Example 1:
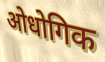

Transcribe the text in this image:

ओधोगिक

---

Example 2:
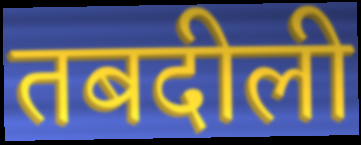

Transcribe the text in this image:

तबदीली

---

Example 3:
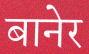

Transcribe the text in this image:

बानेर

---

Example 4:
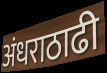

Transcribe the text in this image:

अंधराठाढी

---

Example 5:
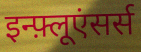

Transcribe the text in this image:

इन्फ़्लूएंसर्स